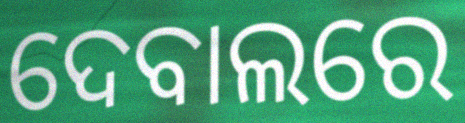
ଦେବାଲରେ